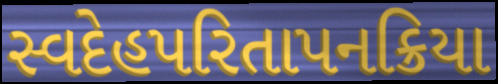
સ્વદેહપરિતાપનક્રિયા